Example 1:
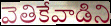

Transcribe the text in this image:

వెతికేవాడిని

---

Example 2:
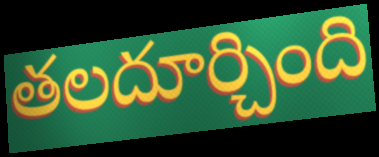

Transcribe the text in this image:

తలదూర్చింది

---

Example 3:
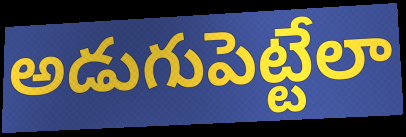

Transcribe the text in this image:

అడుగుపెట్టేలా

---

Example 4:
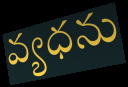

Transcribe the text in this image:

వ్యధను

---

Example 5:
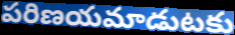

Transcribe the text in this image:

పరిణయమాడుటకు